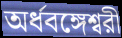
অর্ধবঙ্গেশ্বরী